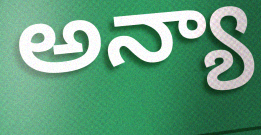
అన్యా